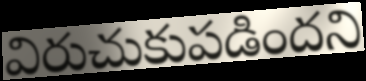
విరుచుకుపడిందని